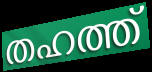
തഹത്ത്